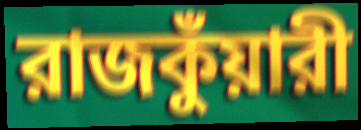
রাজকুঁয়ারী